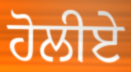
ਹੋਲੀਏ